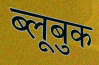
ब्लूबुक